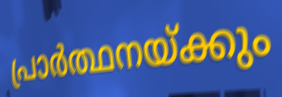
പ്രാർത്ഥനയ്ക്കും